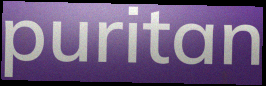
puritan